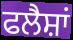
ਫਲੈਸ਼ਾਂ